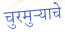
चुरमुऱ्याचे